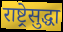
राष्ट्रेसुद्धा